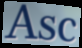
Asc